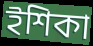
ইশিকা